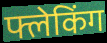
फ्लेकिंग